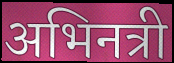
अभिनत्री